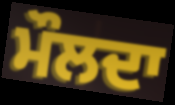
ਮੌਲਦਾ